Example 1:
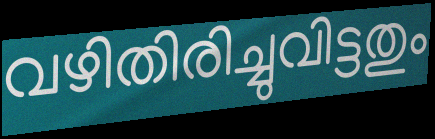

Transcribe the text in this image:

വഴിതിരിച്ചുവിട്ടതും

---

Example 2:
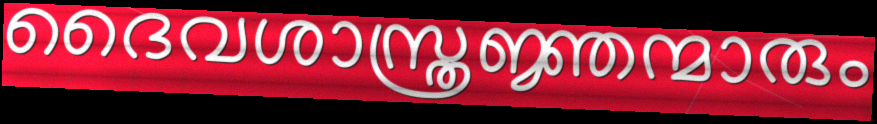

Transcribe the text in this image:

ദൈവശാസ്ത്രജ്ഞന്മാരും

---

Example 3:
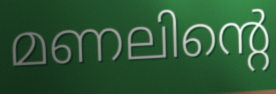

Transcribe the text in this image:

മണലിന്റെ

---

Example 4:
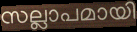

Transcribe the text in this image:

സല്ലാപമായി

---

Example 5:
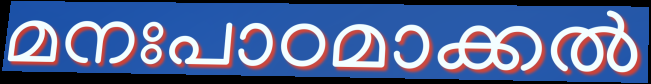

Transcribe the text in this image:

മനഃപാഠമാക്കൽ